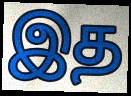
இத